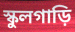
স্কুলগাড়ি